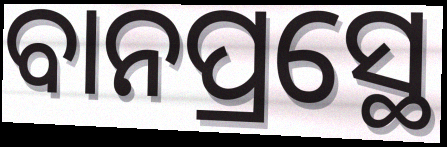
ବାନପ୍ରସ୍ଥେ